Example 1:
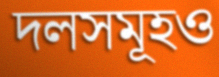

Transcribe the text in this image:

দলসমূহও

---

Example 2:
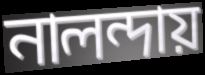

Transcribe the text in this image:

নালন্দায়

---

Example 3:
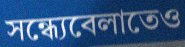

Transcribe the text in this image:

সন্ধ্যেবেলাতেও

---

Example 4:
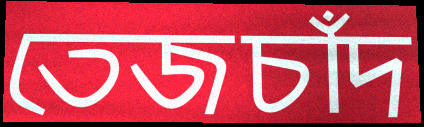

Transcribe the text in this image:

তেজচাঁদ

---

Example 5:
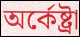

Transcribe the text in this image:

অর্কেষ্ট্রা